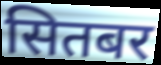
सितबर